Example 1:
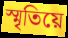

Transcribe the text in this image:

স্মৃতিয়ে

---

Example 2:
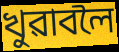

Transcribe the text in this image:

খুৱাবলৈ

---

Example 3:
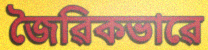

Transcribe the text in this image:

জৈৱিকভাৱে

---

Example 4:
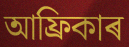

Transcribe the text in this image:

আফ্ৰিকাৰ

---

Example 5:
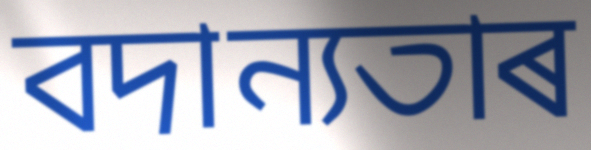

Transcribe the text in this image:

বদান্যতাৰ